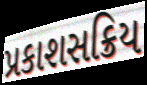
પ્રકાશસક્રિય